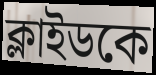
ক্লাইডকে